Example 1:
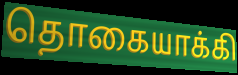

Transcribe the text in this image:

தொகையாக்கி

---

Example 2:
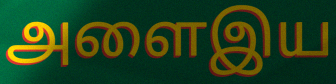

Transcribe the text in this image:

அளைஇய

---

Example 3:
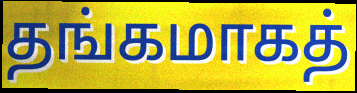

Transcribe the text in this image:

தங்கமாகத்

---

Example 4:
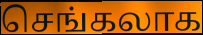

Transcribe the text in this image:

செங்கலாக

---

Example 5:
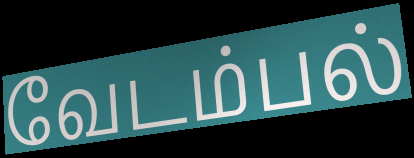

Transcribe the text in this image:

வேடம்பல்